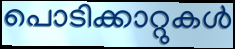
പൊടിക്കാറ്റുകൾ